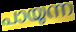
പായുന്ന